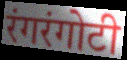
रंगरंगोटी